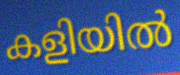
കളിയിൽ